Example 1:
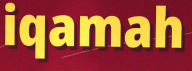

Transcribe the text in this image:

iqamah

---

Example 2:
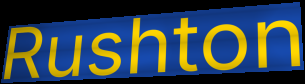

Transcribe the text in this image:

Rushton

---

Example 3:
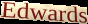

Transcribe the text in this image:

Edwards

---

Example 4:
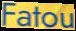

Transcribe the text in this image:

Fatou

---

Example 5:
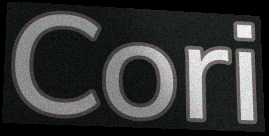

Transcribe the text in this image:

Cori